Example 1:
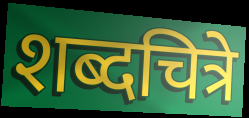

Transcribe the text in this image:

शब्दचित्रे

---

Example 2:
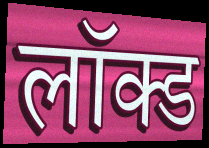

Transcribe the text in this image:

लॉक्ड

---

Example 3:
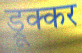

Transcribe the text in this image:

ड्रूक्कर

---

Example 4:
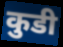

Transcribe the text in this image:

कुडी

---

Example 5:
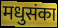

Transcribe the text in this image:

मधुसंका